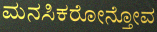
ಮನಸಿಕರೋನ್ತೋವ